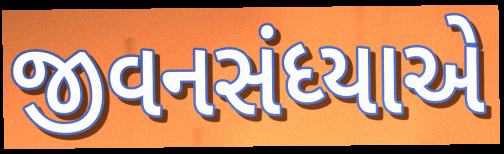
જીવનસંધ્યાએ